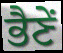
ਭੈਣੇਂ